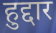
हुद्दार